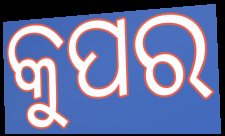
କୁପର